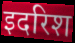
इदरिश